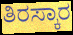
ತಿರಸ್ಕಾರ